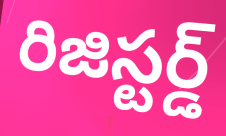
రిజిస్టర్డ్